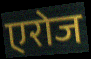
एरोज